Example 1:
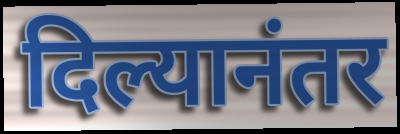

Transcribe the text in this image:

दिल्यानंतर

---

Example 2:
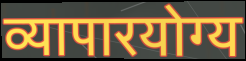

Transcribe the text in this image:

व्यापारयोग्य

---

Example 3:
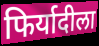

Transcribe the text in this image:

फिर्यादीला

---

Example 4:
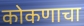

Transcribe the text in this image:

कोकणाचा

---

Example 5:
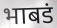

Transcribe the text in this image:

भाबडं